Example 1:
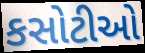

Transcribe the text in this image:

કસોટીઓ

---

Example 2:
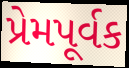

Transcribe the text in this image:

પ્રેમપૂર્વક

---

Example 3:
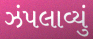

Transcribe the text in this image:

ઝંપલાવ્યું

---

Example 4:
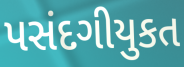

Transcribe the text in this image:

પસંદગીયુકત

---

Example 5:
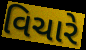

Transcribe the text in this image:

વિચારે